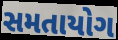
સમતાયોગ